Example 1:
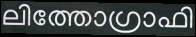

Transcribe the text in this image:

ലിത്തോഗ്രാഫി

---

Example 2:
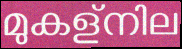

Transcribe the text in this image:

മുകള്നില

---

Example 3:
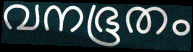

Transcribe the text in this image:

വനഭൂതം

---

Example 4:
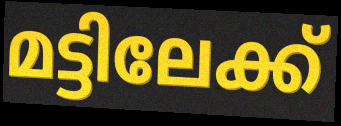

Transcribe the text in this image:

മട്ടിലേക്ക്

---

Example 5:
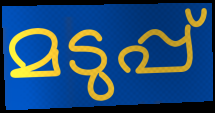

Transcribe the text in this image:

മടുപ്പ്